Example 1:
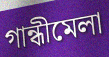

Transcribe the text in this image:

গান্ধীমেলা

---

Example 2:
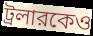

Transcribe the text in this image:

ট্রলারকেও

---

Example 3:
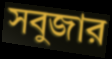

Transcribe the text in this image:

সবুজার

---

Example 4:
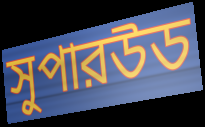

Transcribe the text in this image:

সুপারউড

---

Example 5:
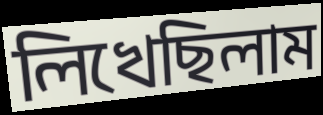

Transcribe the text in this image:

লিখেছিলাম